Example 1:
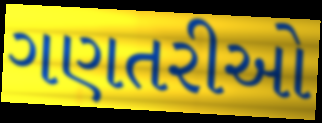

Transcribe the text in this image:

ગણતરીઓ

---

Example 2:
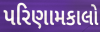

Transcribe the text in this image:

પરિણામકાલો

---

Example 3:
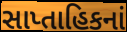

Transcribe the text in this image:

સાપ્તાહિકનાં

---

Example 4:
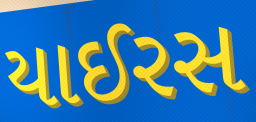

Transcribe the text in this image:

યાઈરસ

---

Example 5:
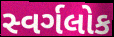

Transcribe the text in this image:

સ્વર્ગલોક